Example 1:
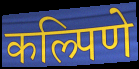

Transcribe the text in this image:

कल्पिणे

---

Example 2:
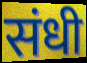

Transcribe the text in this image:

संधी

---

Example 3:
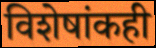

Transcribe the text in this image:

विशेषांकही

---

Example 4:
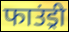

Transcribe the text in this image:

फाउंड्री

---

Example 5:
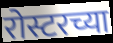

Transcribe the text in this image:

रोस्टरच्या